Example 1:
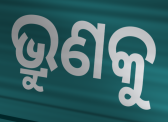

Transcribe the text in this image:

ଭ୍ରୁଣକୁ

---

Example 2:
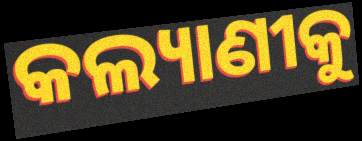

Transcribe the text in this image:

କଲ୍ୟାଣୀକୁ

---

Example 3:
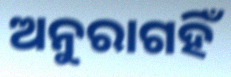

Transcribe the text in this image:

ଅନୁରାଗହିଁ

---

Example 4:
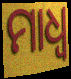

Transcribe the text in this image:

ମାଧ୍ଵ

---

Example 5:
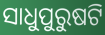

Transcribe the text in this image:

ସାଧୁପୁରୁଷଟି